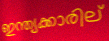
ഇന്ത്യക്കാരില്